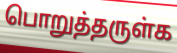
பொறுத்தருள்க